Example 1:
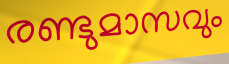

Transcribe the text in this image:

രണ്ടുമാസവും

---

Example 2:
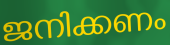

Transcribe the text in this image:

ജനിക്കണം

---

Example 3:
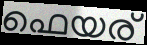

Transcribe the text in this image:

ഫെയര്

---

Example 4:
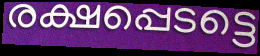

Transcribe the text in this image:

രക്ഷപ്പെടട്ടെ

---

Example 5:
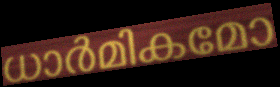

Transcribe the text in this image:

ധാർമികമോ